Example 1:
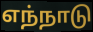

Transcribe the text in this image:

எந்நாடு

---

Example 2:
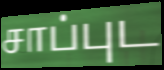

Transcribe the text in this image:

சாப்புட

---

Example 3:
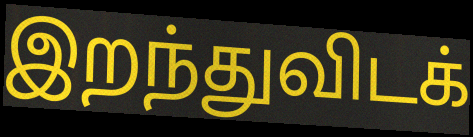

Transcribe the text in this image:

இறந்துவிடக்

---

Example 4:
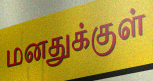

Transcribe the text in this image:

மனதுக்குள்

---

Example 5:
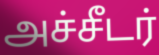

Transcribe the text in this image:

அச்சீடர்